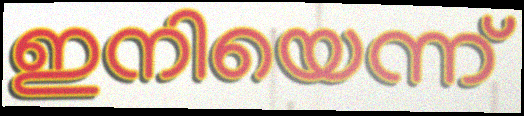
ഇനിയെന്ന്